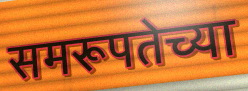
समरूपतेच्या